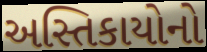
અસ્તિકાયોનો